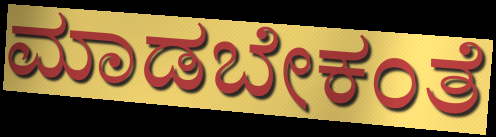
ಮಾಡಬೇಕಂತೆ